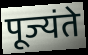
पूज्यंते